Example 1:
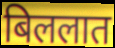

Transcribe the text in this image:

बिललात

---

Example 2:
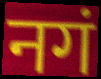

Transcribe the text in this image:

नगं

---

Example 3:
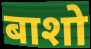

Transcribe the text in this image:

बाशो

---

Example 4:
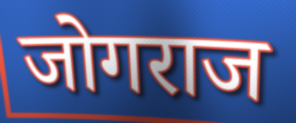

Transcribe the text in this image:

जोगराज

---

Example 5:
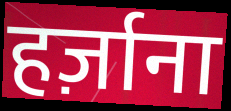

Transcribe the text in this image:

हर्ज़ाना